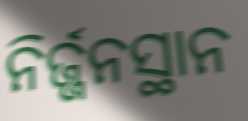
ନିର୍ଜ୍ଜନସ୍ଥାନ